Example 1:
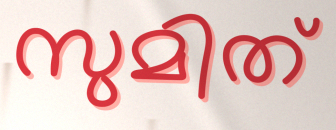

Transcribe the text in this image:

സുമിത്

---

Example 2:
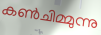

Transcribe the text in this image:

കൺചിമ്മുന്നു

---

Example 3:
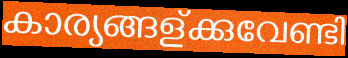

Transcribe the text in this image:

കാര്യങ്ങള്ക്കുവേണ്ടി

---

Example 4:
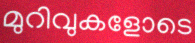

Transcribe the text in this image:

മുറിവുകളോടെ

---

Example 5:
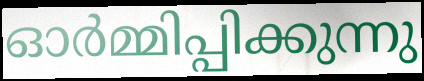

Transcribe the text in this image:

ഓർമ്മിപ്പിക്കുന്നു